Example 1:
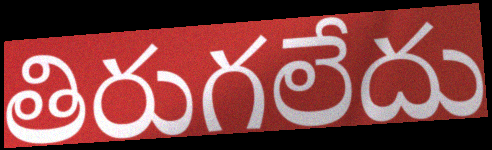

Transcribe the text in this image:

తిరుగలేదు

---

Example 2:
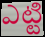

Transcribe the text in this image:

ఎట్టి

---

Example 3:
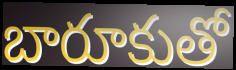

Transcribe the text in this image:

బారూకుతో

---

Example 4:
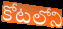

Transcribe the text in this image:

కోటలోని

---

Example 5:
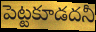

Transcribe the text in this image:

పెట్టకూడదనీ